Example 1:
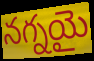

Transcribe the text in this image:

నగ్నయై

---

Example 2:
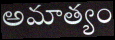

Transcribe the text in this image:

అమాత్యం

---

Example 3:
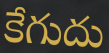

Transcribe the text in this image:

కేగుదు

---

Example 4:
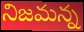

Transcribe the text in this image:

నిజమన్న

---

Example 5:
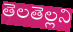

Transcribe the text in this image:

తెలతెల్లని